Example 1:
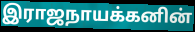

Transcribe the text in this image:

இராஜநாயக்கனின்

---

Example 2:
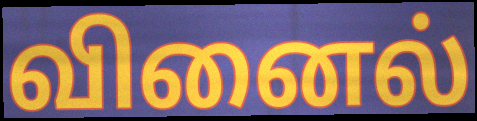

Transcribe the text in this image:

வினைல்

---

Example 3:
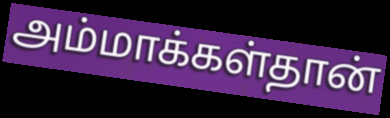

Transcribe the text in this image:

அம்மாக்கள்தான்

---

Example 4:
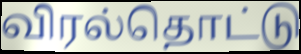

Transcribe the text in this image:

விரல்தொட்டு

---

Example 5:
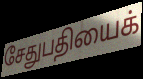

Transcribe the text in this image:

சேதுபதியைக்